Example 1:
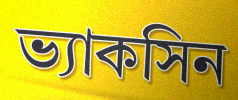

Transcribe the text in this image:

ভ্যাকসিন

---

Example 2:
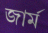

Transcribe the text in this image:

জার্ম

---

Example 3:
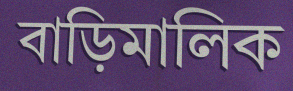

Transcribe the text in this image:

বাড়িমালিক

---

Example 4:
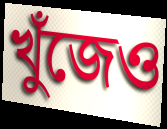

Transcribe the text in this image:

খুঁজেও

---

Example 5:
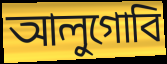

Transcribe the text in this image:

আলুগোবি